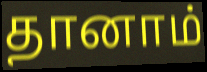
தானாம்